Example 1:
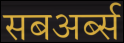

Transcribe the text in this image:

सबअर्ब्स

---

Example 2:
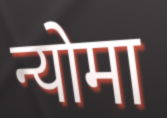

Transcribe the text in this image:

न्योमा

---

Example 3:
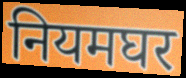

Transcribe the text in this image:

नियमघर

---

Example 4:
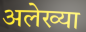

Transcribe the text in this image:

अलेख्या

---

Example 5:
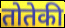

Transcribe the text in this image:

तोतेकी